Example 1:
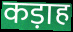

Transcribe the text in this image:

कड़ाह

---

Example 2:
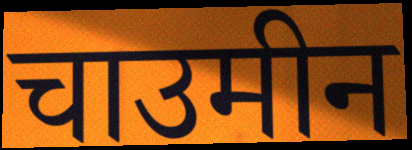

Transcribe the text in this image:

चाउमीन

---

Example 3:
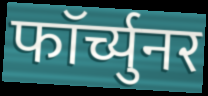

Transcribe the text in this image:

फॉर्च्युनर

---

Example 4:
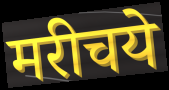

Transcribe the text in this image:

मरीचये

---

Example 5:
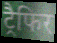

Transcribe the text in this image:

ट्रैफिर